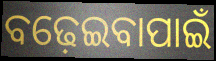
ବଢ଼େଇବାପାଇଁ